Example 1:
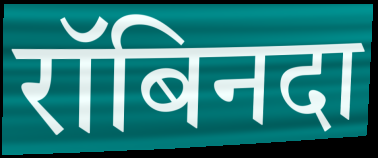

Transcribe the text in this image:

रॉबिनदा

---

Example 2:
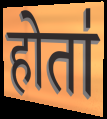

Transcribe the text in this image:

होता॑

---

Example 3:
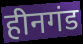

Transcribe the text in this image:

हीनगंड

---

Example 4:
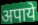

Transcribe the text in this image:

अपाये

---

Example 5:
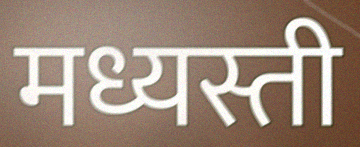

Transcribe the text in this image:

मध्यस्ती